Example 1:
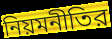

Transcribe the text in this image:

নিয়মনীতির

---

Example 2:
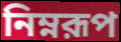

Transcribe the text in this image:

নিম্নরূপ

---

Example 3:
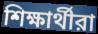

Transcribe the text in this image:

শিক্ষার্থীরা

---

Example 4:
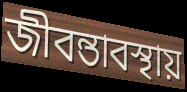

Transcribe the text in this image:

জীবন্তাবস্থায়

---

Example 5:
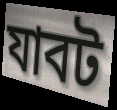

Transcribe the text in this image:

যাবট